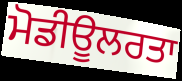
ਮੋਡੀਊਲਰਤਾ